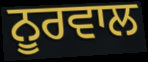
ਨੂਰਵਾਲ